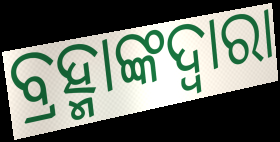
ବ୍ରହ୍ମାଙ୍କଦ୍ୱାରା